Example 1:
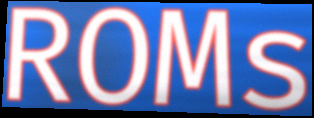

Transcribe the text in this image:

ROMs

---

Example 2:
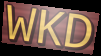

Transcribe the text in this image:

WKD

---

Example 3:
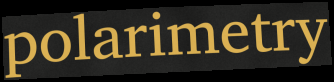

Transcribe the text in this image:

polarimetry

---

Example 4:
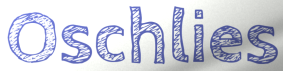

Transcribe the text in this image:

Oschlies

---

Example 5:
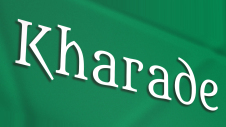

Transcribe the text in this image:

Kharade